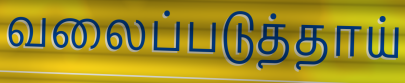
வலைப்படுத்தாய்